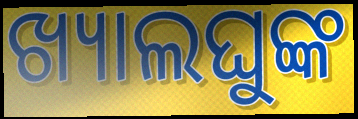
ଖ୍ୟାଲଘୁଙ୍କ